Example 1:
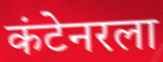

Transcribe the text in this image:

कंटेनरला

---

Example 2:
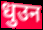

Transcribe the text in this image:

धुउन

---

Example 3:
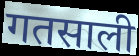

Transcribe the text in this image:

गतसाली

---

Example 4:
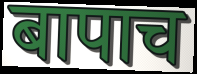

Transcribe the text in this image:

बापाच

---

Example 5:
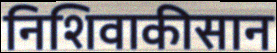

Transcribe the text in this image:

निशिवाकीसान